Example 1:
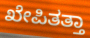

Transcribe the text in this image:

ಖೇಪಿತತ್ತಾ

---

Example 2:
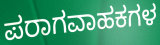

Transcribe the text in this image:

ಪರಾಗವಾಹಕಗಳ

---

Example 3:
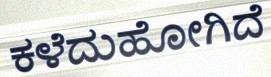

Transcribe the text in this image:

ಕಳೆದುಹೋಗಿದೆ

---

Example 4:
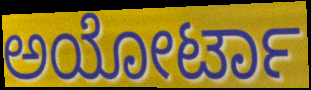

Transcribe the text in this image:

ಅಯೋರ್ಟಾ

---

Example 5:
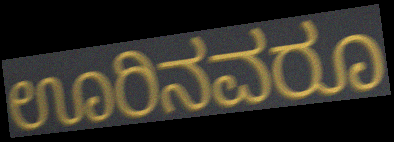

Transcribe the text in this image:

ಊರಿನವರೂ